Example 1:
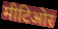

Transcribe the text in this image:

मीटिओर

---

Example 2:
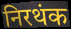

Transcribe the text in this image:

निरथंक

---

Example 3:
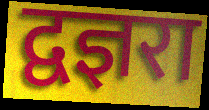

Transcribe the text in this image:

द्वज्ञरा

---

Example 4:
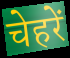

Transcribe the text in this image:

चेहरें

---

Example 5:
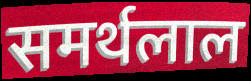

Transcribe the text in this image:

समर्थलाल